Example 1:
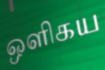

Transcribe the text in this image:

ஒளிகய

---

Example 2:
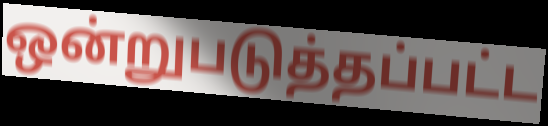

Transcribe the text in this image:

ஒன்றுபடுத்தப்பட்ட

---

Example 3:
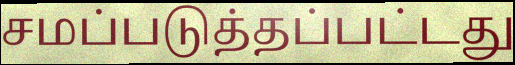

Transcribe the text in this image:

சமப்படுத்தப்பட்டது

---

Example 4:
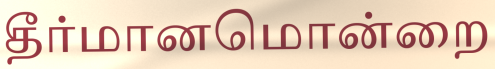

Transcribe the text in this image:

தீர்மானமொன்றை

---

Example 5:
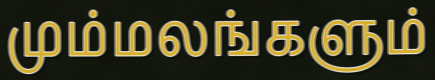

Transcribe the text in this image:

மும்மலங்களும்